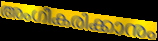
അംഗീകരിക്കാനും